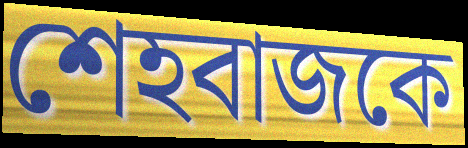
শেহবাজকে